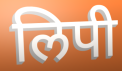
लिपी